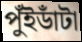
পুঁইডাঁটা